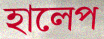
হালেপ